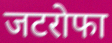
जटरोफा